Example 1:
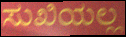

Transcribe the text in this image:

ಸುಖಿಯಲ್ಲ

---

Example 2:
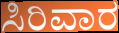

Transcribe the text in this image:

ಸಿರಿವಾರ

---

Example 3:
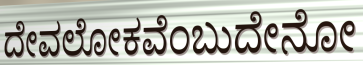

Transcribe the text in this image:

ದೇವಲೋಕವೆಂಬುದೇನೋ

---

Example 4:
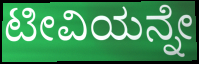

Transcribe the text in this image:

ಟೀವಿಯನ್ನೇ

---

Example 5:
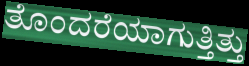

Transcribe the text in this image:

ತೊಂದರೆಯಾಗುತ್ತಿತ್ತು